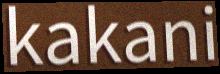
kakani